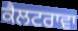
ਕੈਲਟਰਾਵਾ